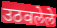
उठवलेले